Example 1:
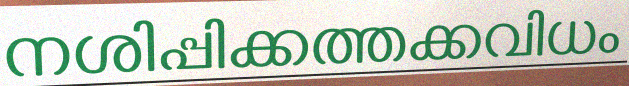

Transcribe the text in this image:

നശിപ്പിക്കത്തക്കവിധം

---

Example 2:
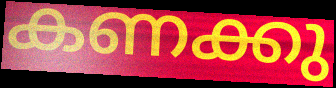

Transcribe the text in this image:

കണക്കു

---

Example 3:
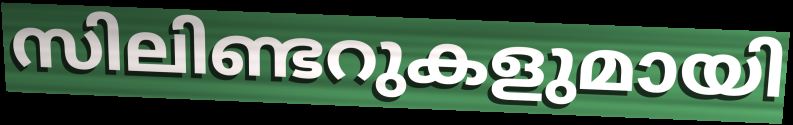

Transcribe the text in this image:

സിലിണ്ടറുകളുമായി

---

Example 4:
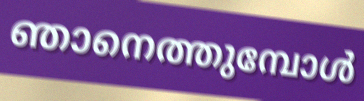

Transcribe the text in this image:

ഞാനെത്തുമ്പോൾ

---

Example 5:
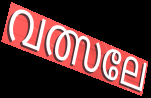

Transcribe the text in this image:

വത്സലേ